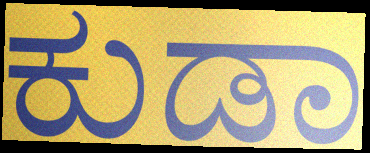
ಕುಡಾ